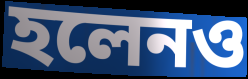
হলেনও